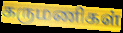
கருமணிகள்